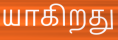
யாகிறது